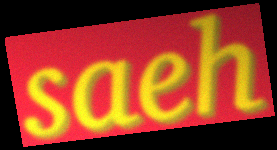
saeh